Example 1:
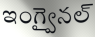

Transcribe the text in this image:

ఇంగ్వైనల్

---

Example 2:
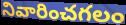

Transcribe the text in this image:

నివారించగలం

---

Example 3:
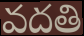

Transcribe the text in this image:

వదతి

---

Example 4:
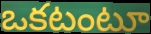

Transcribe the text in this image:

ఒకటంటూ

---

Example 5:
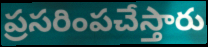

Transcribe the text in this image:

ప్రసరింపచేస్తారు